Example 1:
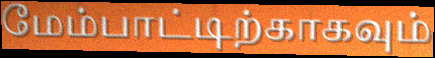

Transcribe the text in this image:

மேம்பாட்டிற்காகவும்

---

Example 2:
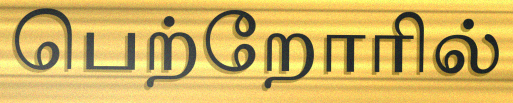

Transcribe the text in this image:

பெற்றோரில்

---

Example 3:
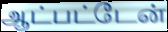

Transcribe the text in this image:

ஆட்பட்டேன்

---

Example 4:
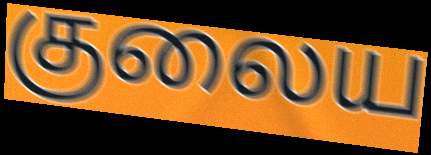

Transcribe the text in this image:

குலைய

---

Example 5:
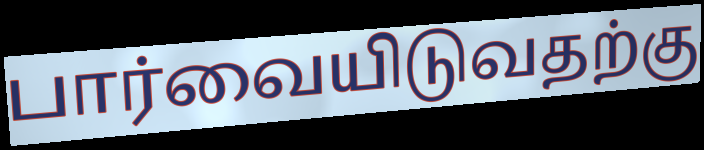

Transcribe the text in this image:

பார்வையிடுவதற்கு